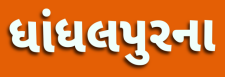
ધાંધલપુરના